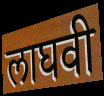
लाघवी